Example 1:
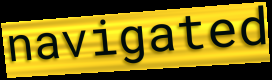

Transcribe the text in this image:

navigated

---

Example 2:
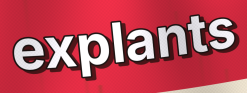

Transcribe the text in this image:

explants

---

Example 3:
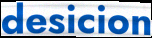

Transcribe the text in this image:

desicion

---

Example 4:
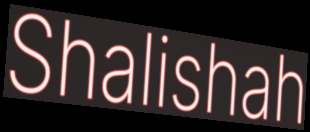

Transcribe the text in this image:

Shalishah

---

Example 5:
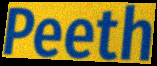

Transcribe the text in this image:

Peeth